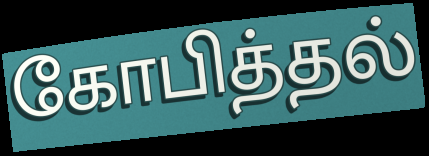
கோபித்தல்